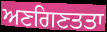
ਅਣਗਿਣਤਤਾ